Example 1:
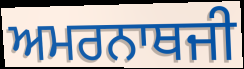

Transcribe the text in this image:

ਅਮਰਨਾਥਜੀ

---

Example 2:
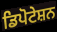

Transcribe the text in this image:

ਡਿਪੋਟੇਸ਼ਨ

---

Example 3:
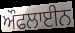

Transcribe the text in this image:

ਔਫਲਾਈਨ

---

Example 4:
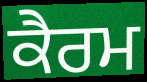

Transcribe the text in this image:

ਕੈਰਮ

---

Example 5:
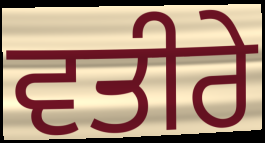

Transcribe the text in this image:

ਵਤੀਰੇ